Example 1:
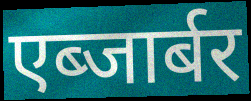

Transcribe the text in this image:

एब्जार्बर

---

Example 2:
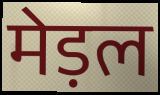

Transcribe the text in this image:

मेड़ल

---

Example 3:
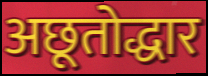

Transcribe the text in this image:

अछूतोद्धार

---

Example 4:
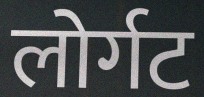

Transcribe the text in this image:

लोर्गट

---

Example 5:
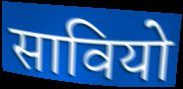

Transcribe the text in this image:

सावियो